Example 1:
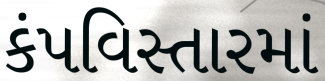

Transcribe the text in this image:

કંપવિસ્તારમાં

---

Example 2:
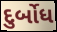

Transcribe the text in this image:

દુર્બોધ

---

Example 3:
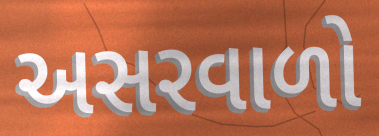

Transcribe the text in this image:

અસરવાળો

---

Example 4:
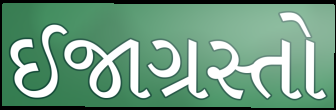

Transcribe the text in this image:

ઈજાગ્રસ્તો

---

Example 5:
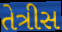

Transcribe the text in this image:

તેત્રીસ